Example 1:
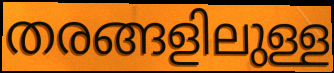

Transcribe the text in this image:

തരങ്ങളിലുള്ള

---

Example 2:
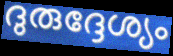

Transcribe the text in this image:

ദുരുദ്ദേശ്യം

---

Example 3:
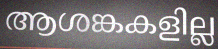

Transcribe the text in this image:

ആശങ്കകളില്ല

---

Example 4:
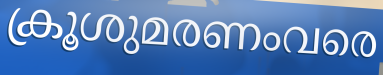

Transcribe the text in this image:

ക്രൂശുമരണംവരെ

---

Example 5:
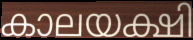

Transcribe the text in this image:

കാലയക്ഷി